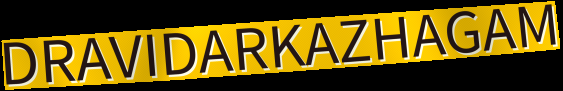
DRAVIDARKAZHAGAM